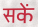
सकें